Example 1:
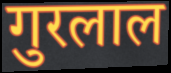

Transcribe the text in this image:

गुरलाल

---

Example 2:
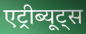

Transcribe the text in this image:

एट्रीब्यूट्स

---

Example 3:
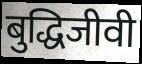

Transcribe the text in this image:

बुद्धिजीवी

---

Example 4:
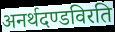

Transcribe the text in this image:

अनर्थदण्डविरति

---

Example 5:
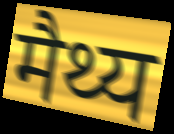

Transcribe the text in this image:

मैथ्य